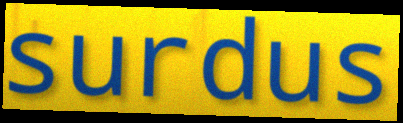
surdus